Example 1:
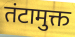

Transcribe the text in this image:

तंटामुक्त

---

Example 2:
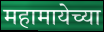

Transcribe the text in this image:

महामायेच्या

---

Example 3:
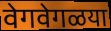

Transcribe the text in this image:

वेगवेगळया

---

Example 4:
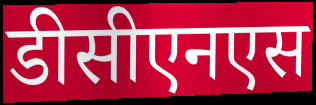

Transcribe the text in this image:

डीसीएनएस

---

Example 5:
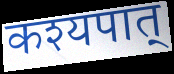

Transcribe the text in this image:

कश्यपात्